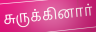
சுருக்கினார்